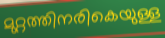
മുറ്റത്തിനരികെയുള്ള